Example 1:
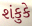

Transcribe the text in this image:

શંકુકે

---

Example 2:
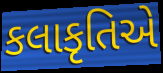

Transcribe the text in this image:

કલાકૃતિએ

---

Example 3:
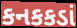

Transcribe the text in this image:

કનકકડાં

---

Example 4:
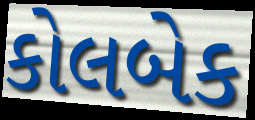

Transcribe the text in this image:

કોલબેક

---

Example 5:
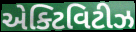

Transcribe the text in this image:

એક્ટિવિટીઝ